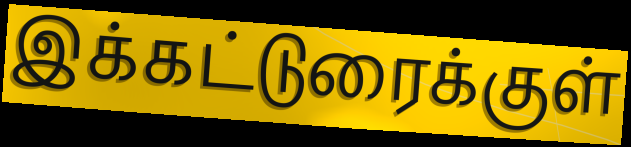
இக்கட்டுரைக்குள்